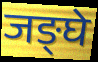
जङ्घे